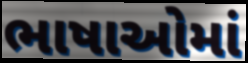
ભાષાઓમાં